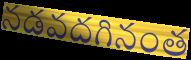
నడవదగినంత